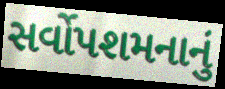
સર્વોપશમનાનું